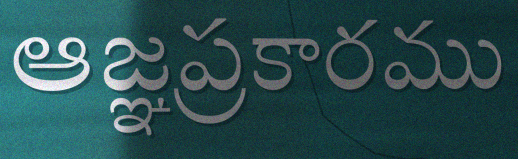
ఆజ్ఞప్రకారము